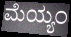
ಮೆಯ್ಯಂ